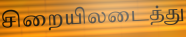
சிறையிலடைத்து